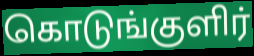
கொடுங்குளிர்